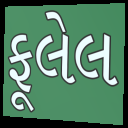
ફૂલેલ